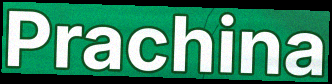
Prachina